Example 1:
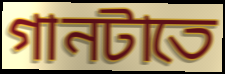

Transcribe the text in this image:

গানটাতে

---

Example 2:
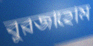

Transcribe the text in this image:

বুরজাহোম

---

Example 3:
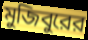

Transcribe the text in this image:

মুজিবুরের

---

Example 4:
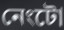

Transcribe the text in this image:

নেংটো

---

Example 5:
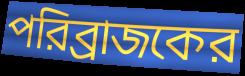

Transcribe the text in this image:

পরিব্রাজকের